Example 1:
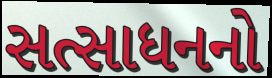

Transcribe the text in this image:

સત્સાધનનો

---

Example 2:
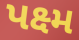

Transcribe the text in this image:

પક્ષ્મ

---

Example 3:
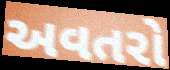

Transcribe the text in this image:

અવતરો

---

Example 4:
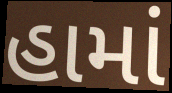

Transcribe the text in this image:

હામાં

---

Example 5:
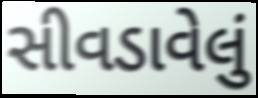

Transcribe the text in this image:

સીવડાવેલું